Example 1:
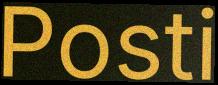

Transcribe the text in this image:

Posti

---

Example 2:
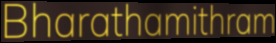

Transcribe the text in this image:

Bharathamithram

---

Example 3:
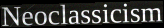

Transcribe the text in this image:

Neoclassicism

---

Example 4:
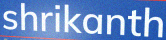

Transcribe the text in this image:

shrikanth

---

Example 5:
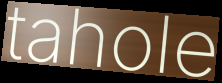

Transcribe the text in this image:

tahole